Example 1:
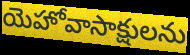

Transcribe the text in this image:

యెహోవాసాక్షులను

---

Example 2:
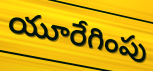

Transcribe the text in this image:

యూరేగింపు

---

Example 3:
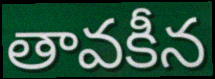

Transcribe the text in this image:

తావకీన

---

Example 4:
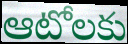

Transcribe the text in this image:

ఆటోలకు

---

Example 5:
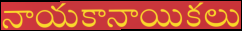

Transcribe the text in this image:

నాయకానాయికలు